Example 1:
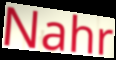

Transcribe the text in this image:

Nahr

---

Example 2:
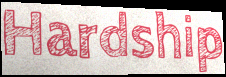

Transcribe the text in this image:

Hardship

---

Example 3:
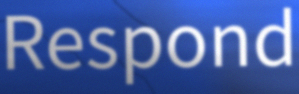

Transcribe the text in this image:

Respond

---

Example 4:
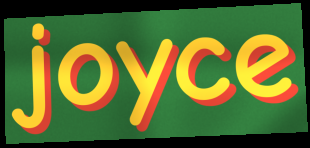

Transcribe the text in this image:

joyce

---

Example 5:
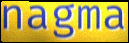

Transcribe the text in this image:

nagma